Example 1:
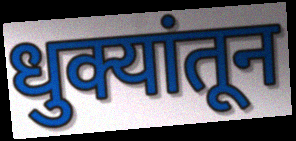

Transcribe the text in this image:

धुक्यांतून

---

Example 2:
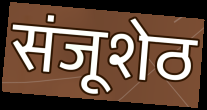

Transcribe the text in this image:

संजूशेठ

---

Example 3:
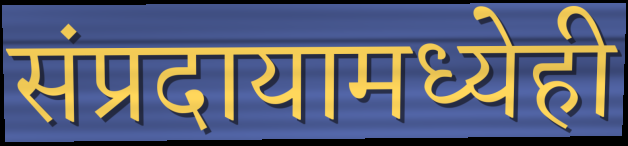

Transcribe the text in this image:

संप्रदायामध्येही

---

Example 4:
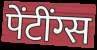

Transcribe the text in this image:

पेंटींग्स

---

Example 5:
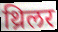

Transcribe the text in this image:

थ्रिलर